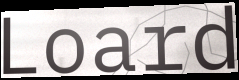
Loard